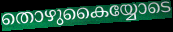
തൊഴുകൈയ്യോടെ